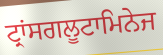
ਟ੍ਰਾਂਸਗਲੂਟਾਮਿਨੇਜ